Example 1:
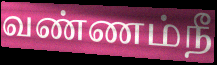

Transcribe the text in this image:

வண்ணம்நீ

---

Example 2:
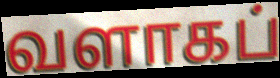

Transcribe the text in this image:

வளாகப்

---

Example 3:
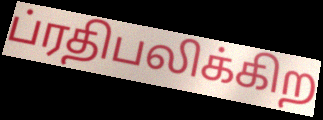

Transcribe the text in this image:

ப்ரதிபலிக்கிற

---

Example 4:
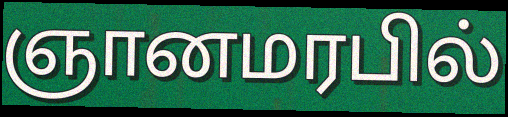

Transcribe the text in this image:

ஞானமரபில்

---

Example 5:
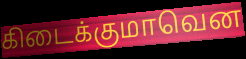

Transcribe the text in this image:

கிடைக்குமாவென